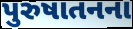
પુરુષાતનના